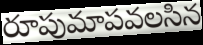
రూపుమాపవలసిన